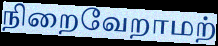
நிறைவேறாமற்